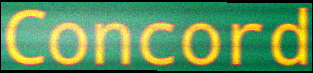
Concord